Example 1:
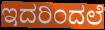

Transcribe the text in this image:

ಇದರಿಂದಲೆ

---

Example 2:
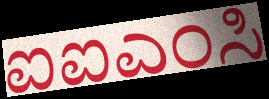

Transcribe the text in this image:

ಐಐಎಂಸಿ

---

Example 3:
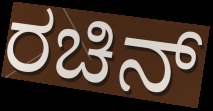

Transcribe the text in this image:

ರಚಿನ್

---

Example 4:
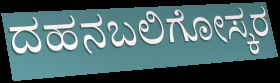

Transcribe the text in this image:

ದಹನಬಲಿಗೋಸ್ಕರ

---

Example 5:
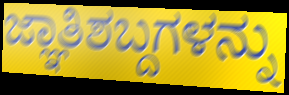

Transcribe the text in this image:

ಜ್ಞಾತಿಶಬ್ದಗಳನ್ನು